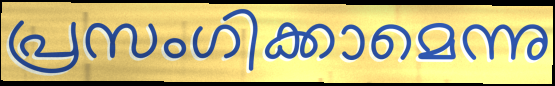
പ്രസംഗിക്കാമെന്നു